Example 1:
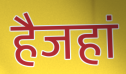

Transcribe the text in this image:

हैजहां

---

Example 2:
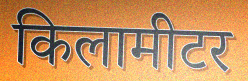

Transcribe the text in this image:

किलामीटर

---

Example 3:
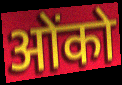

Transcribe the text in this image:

ओंको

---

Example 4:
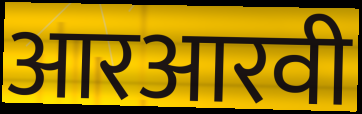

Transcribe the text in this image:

आरआरवी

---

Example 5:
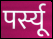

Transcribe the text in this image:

पर्स्यू